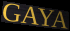
GAYA